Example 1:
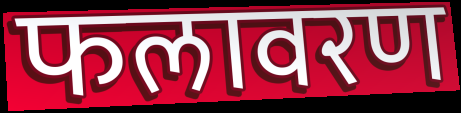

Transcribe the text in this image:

फलावरण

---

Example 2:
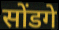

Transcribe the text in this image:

सोंडगे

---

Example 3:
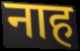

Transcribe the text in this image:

नाह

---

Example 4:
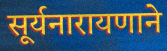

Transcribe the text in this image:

सूर्यनारायणाने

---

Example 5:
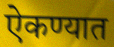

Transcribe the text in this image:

ऐकण्यात